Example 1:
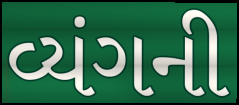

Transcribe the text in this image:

વ્યંગની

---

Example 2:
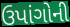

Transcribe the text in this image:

ઉપાંગોની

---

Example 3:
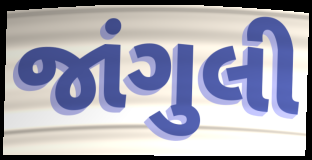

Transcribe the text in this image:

જાંગુલી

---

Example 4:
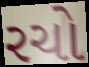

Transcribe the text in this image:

રચો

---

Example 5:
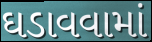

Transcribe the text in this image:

ઘડાવવામાં